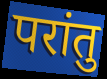
परांतु